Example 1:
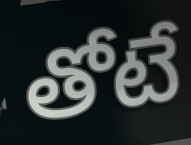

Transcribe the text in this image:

తోటే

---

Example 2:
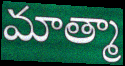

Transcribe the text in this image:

మాత్మా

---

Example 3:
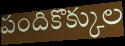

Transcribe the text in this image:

పందికొక్కుల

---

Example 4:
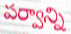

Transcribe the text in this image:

పర్వాన్ని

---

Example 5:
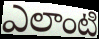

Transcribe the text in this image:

ఎలాంటి